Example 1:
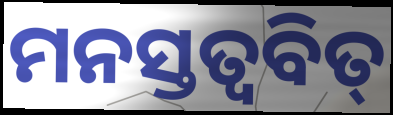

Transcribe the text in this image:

ମନସ୍ତତ୍ୱବିତ୍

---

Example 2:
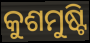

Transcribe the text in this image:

କୁଶମୁଷ୍ଟି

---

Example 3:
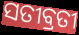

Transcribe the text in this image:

ସତୀବ୍ରତୀ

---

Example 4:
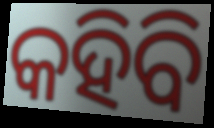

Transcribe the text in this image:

କହିବି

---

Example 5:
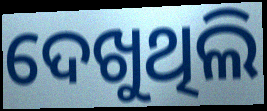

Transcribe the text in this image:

ଦେଖୁଥିଲି